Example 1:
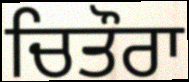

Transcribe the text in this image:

ਚਿਤੌਰਾ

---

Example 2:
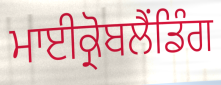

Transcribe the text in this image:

ਮਾਈਕ੍ਰੋਬਲੈਂਡਿੰਗ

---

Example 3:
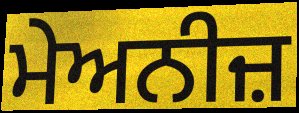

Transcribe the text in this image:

ਮੇਅਨੀਜ਼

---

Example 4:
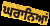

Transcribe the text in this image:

ਘਰਾਨਿਆਂ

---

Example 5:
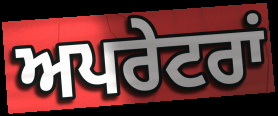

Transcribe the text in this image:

ਅਪਰੇਟਰਾਂ